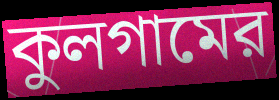
কুলগামের